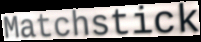
Matchstick